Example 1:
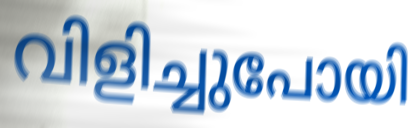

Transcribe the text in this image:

വിളിച്ചുപോയി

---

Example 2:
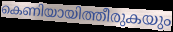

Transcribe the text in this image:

കെണിയായിത്തീരുകയും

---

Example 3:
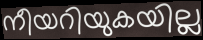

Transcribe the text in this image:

നീയറിയുകയില്ല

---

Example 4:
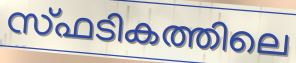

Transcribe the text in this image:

സ്ഫടികത്തിലെ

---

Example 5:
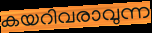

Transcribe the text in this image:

കയറിവരാവുന്ന